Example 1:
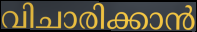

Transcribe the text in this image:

വിചാരിക്കാൻ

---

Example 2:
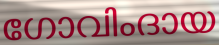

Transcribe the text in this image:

ഗോവിംദായ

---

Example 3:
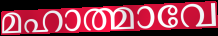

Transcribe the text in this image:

മഹാത്മാവേ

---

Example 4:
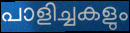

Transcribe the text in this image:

പാളിച്ചകളും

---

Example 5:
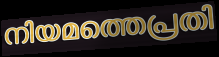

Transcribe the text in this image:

നിയമത്തെപ്രതി